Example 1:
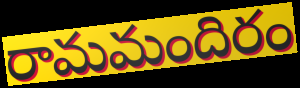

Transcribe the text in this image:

రామమందిరం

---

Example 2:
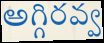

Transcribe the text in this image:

అగ్గిరవ్వ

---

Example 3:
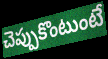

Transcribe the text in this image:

చెప్పుకొంటుంటే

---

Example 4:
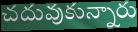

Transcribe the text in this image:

చదువుకున్నారు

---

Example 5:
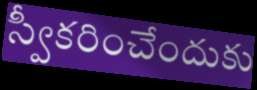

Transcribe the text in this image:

స్వీకరించేందుకు